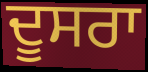
ਦੂਸਰਾ